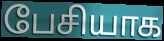
பேசியாக